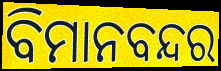
ବିମାନବନ୍ଦର